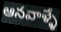
ఆనవాళ్ళే